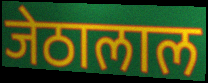
जेठालाल